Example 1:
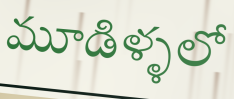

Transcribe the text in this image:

మూడిళ్ళలో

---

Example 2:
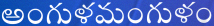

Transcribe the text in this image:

అంగుళమంగుళం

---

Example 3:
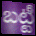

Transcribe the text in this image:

బట్టీ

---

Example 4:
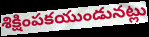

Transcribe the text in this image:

శిక్షింపకయుండునట్లు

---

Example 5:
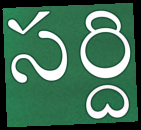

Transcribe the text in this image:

సర్ది